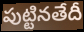
పుట్టినతేదీ